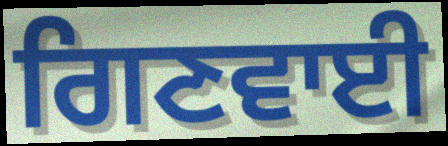
ਗਿਣਵਾਈ